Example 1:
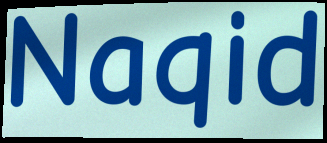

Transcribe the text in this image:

Naqid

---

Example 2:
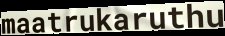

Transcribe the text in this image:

maatrukaruthu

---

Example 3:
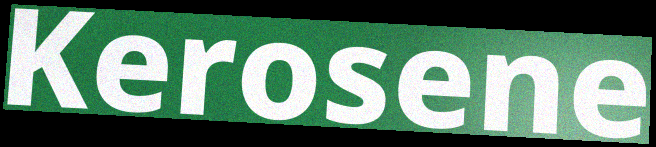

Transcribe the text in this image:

Kerosene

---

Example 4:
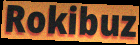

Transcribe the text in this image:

Rokibuz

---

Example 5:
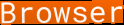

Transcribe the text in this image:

Browser